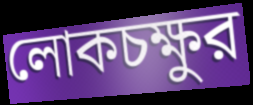
লোকচক্ষুর